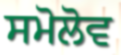
ਸਮੋਲੋਵ